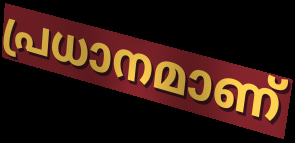
പ്രധാനമാണ്